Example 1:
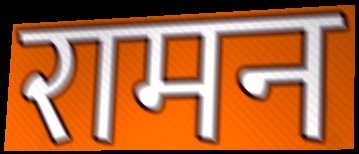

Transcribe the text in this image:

रामन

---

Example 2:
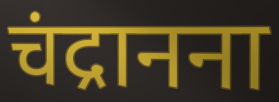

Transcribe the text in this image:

चंद्रानना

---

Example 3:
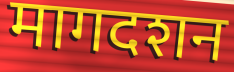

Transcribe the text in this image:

मागदशन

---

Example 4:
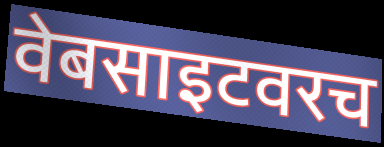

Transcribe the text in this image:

वेबसाइटवरच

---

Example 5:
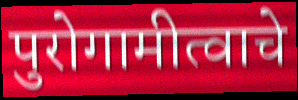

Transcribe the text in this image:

पुरोगामीत्वाचे